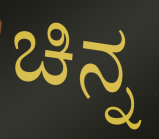
ಚಿನ್ನ